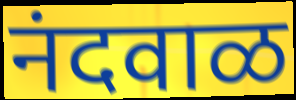
नंदवाळ